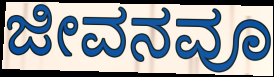
ಜೀವನವೂ